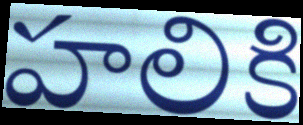
హలికి